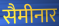
सैमीनार